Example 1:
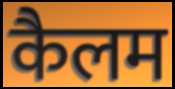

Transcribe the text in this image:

कैलम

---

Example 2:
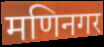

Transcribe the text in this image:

मणिनगर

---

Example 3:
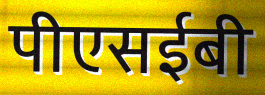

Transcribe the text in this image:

पीएसईबी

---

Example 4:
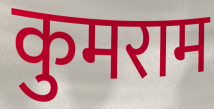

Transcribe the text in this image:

कुमराम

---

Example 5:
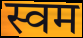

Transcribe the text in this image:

स्वम